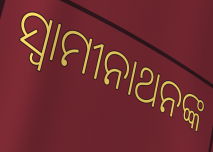
ସ୍ଵାମୀନାଥନଙ୍କ